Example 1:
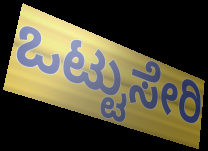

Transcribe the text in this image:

ಒಟ್ಟುಸೇರಿ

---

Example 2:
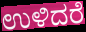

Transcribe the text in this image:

ಉಳಿದರೆ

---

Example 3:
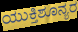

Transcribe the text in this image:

ಯುಕ್ತಿಶೂನ್ಯರ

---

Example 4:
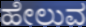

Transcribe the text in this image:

ಹೇಲುವ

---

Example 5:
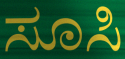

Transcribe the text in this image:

ಸೂಸಿ